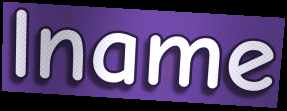
lname